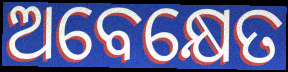
ଅବେକ୍ଷେତ